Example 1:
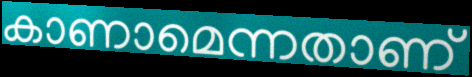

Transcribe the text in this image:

കാണാമെന്നതാണ്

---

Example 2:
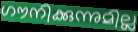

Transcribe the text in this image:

ഗൗനിക്കുന്നുമില്ല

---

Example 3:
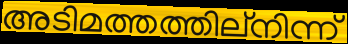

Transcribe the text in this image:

അടിമത്തത്തില്നിന്ന്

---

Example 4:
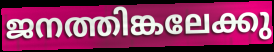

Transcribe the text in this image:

ജനത്തിങ്കലേക്കു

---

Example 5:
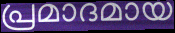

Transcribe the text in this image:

പ്രമാദമായ